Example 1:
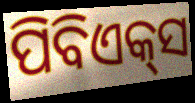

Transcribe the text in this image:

ପିବିଏକ୍‌ସ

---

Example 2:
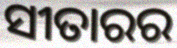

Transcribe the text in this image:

ସୀତାରର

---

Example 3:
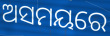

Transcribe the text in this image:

ଅସମୟରେ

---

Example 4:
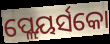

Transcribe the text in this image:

ପ୍ଲେୟର୍ସକୋ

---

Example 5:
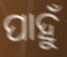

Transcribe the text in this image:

ପାହୁଁ